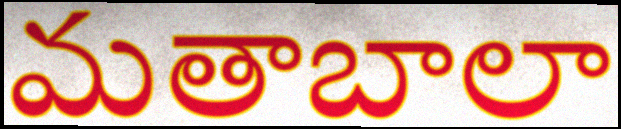
మతాబాలా